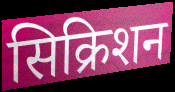
सिक्रिशन